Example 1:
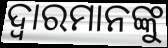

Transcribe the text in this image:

ଦ୍ୱାରମାନଙ୍କୁ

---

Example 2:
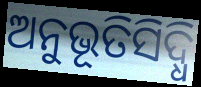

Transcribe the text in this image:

ଅନୁଭୂତିସିଦ୍ଧି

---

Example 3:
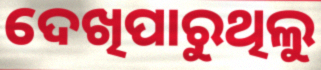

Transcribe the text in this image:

ଦେଖିପାରୁଥିଲୁ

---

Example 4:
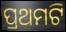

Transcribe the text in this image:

ପ୍ରଥମଟି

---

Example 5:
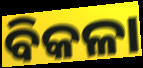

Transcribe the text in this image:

ବିକଳା